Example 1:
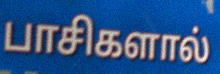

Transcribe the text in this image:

பாசிகளால்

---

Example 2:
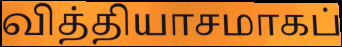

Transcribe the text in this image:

வித்தியாசமாகப்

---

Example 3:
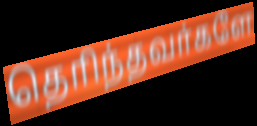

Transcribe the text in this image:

தெரிந்தவர்களே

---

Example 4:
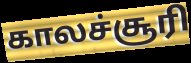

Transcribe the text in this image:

காலச்சூரி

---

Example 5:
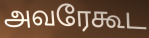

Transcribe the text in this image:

அவரேகூட